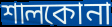
শালকোনা